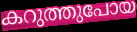
കറുത്തുപോയ